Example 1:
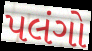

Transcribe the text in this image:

પલંગો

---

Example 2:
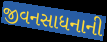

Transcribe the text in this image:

જીવનસાધનાની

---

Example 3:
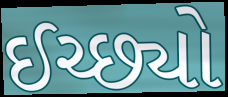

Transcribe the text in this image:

ઈચ્છ્યો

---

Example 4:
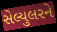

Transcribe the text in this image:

સેલ્યુલરને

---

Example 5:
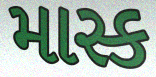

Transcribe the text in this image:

માસ્ક